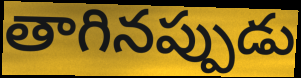
తాగినప్పుడు